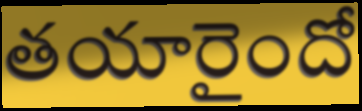
తయారైందో